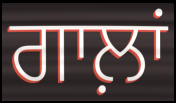
ਗਾਲ਼ਾਂ